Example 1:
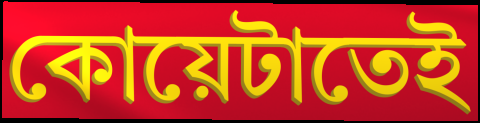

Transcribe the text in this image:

কোয়েটাতেই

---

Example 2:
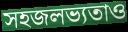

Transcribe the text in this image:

সহজলভ্যতাও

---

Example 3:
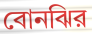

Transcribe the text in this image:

বোনঝির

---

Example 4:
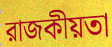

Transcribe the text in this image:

রাজকীয়তা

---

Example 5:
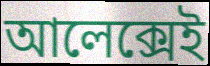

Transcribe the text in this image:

আলেক্সেই